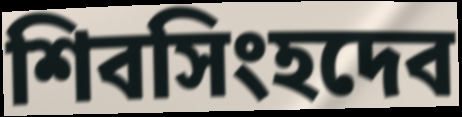
শিবসিংহদেব